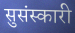
सुसंस्कारी